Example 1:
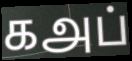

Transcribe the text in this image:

கஅப்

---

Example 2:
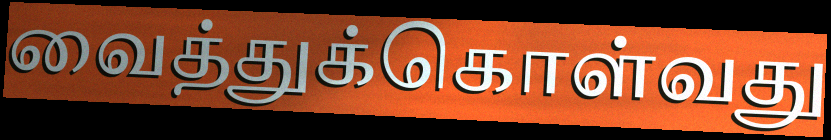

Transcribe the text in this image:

வைத்துக்கொள்வது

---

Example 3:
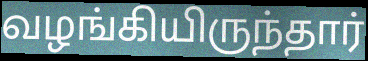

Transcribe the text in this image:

வழங்கியிருந்தார்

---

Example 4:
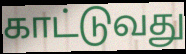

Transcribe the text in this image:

காட்டுவது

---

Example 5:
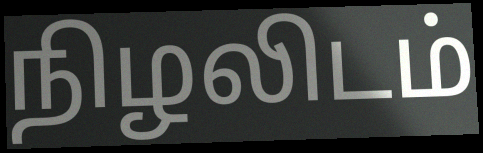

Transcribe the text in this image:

நிழலிடம்